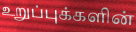
உறுப்புக்களின்